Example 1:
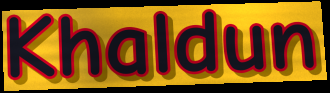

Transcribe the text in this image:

Khaldun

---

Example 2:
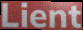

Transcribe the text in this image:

Lient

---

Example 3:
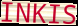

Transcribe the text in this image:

INKIS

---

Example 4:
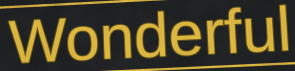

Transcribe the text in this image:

Wonderful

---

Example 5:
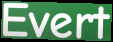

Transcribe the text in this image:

Evert